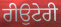
ਰੀਉਟੇਰੀ